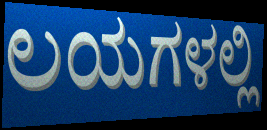
ಲಯಗಳಲ್ಲಿ